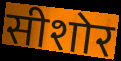
सीशोर